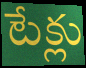
టేక్లు